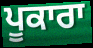
ਪੂਕਾਰਾ